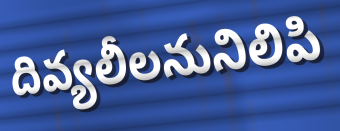
దివ్యలీలనునిలిపి